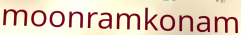
moonramkonam